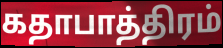
கதாபாத்திரம்